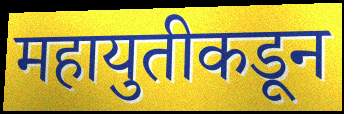
महायुतीकडून